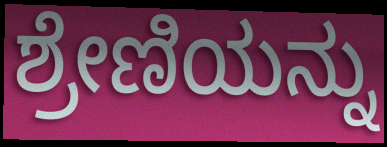
ಶ್ರೇಣಿಯನ್ನು